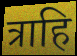
त्राहि